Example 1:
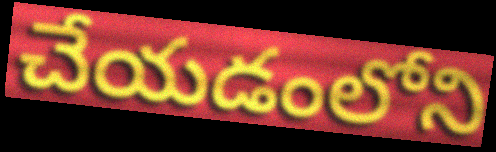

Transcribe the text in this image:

చేయడంలోని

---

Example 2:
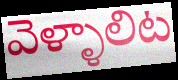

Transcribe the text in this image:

వెళ్ళాలిట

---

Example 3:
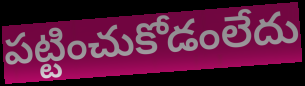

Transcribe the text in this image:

పట్టించుకోడంలేదు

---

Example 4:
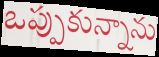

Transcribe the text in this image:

ఒప్పుకున్నాను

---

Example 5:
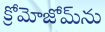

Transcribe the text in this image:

క్రోమోజోమ్‌ను